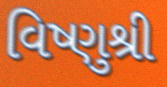
વિષ્ણુશ્રી